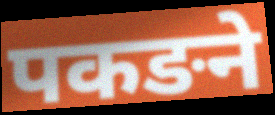
पकङने